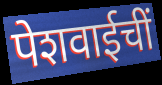
पेशवाईचीं